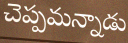
చెప్పమన్నాడు